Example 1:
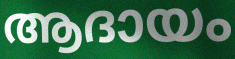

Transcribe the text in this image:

ആദായം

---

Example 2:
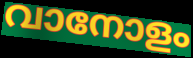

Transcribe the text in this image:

വാനോളം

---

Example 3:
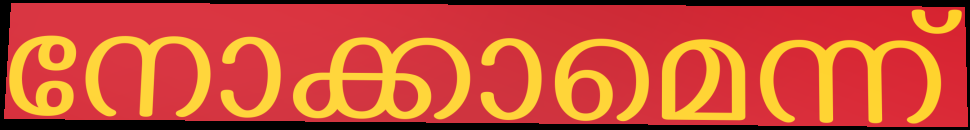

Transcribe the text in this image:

നോക്കാമെന്ന്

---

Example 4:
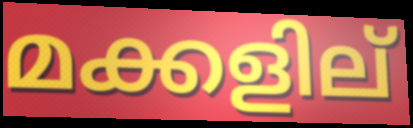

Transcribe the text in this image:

മക്കളില്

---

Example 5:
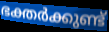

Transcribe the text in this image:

ഭക്തർക്കുണ്ട്